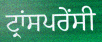
ਟ੍ਰਾਂਸਪਰੇਂਸੀ